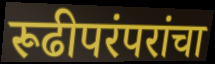
रूढीपरंपरांचा